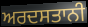
ਅਰਦਸਤਾਨੀ